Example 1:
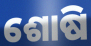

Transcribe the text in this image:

ଶୋଷି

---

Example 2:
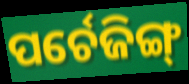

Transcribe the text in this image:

ପର୍ଚେଜିଙ୍ଗ୍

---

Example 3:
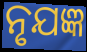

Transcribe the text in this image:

ନୃଯଜ୍ଞ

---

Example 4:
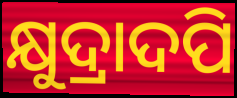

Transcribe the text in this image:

କ୍ଷୁଦ୍ରାଦପି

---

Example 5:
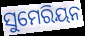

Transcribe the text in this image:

ସୁମେରିୟନ